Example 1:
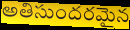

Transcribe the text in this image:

అతిసుందరమైన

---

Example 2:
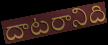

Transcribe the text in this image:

దాటరానిది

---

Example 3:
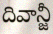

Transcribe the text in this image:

దివాన్జీ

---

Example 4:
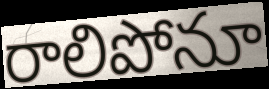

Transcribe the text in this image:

రాలిపోనూ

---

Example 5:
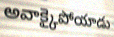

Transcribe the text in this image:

అవాక్కైపోయాడు